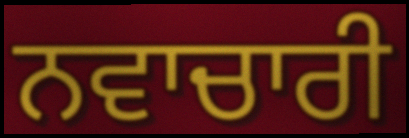
ਨਵਾਚਾਰੀ